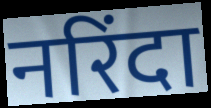
नरिंदा